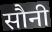
सौनी